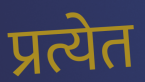
प्रत्येत